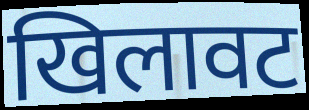
खिलावट